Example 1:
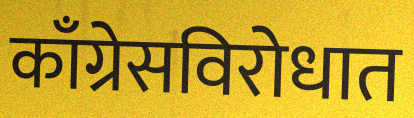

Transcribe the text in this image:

काँग्रेसविरोधात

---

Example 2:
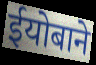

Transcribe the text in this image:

ईयोबाने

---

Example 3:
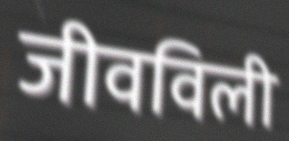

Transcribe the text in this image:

जीवविली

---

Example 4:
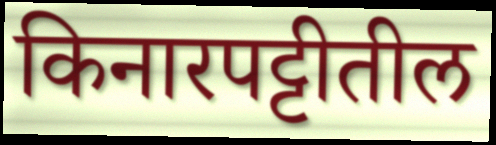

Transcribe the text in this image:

किनारपट्टीतील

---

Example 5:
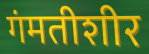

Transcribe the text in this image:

गंमतीशीर